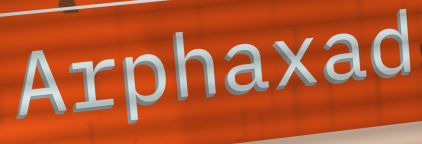
Arphaxad